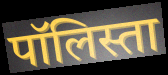
पॉलिस्ता